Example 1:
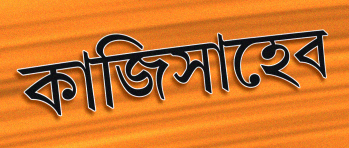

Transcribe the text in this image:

কাজিসাহেব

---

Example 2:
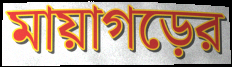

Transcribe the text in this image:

মায়াগড়ের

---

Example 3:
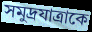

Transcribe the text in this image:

সমুদ্রযাত্রাকে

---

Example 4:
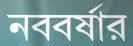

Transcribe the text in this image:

নববর্ষার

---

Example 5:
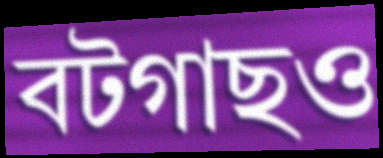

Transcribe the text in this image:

বটগাছও